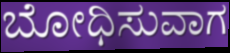
ಬೋಧಿಸುವಾಗ